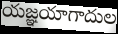
యజ్ఞయాగాదుల